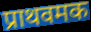
प्राथवमक